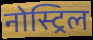
नोस्ट्रिल